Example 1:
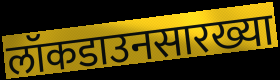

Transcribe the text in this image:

लॉकडाउनसारख्या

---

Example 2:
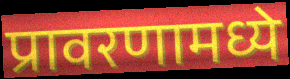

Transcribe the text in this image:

प्रावरणामध्ये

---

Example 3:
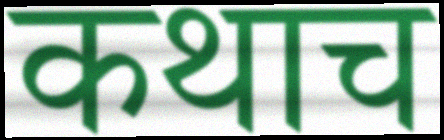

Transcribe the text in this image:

कथाच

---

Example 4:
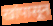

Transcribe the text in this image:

खांपासून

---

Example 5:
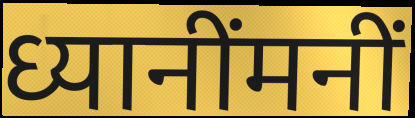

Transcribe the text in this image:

ध्यानींमनीं